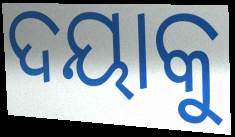
ଦୟାକୁ